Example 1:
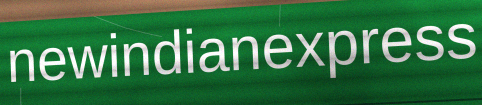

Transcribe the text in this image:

newindianexpress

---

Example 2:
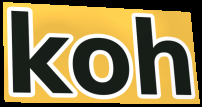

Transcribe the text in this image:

koh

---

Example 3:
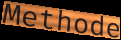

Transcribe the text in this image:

Methode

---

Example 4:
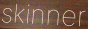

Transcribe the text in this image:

skinner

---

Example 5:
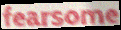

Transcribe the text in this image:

fearsome